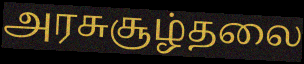
அரசுசூழ்தலை